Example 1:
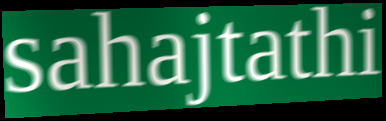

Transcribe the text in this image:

sahajtathi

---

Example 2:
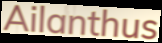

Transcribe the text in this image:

Ailanthus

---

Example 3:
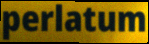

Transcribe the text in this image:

perlatum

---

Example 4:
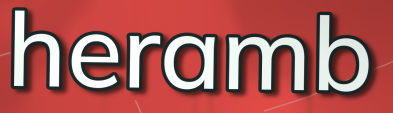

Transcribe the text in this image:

heramb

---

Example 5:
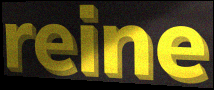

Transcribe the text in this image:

reine